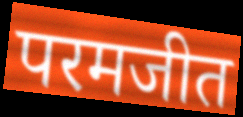
परमजीत